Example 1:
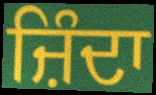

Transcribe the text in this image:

ਜ਼ਿੰਦਾ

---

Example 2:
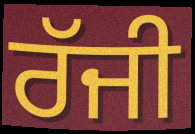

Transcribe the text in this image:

ਰੱਜੀ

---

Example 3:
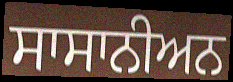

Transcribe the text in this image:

ਸਾਸਾਨੀਅਨ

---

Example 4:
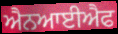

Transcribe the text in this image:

ਐਨਆਈਐਫ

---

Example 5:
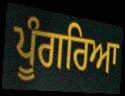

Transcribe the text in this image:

ਪੂੰਗਰਿਆ